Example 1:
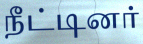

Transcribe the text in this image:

நீட்டினர்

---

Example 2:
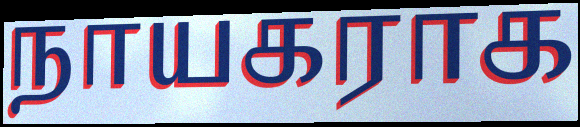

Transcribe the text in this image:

நாயகராக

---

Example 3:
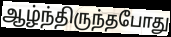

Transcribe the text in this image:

ஆழ்ந்திருந்தபோது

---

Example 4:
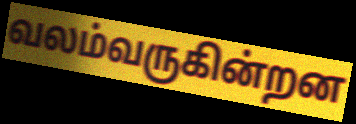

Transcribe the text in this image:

வலம்வருகின்றன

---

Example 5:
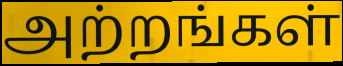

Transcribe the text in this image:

அற்றங்கள்